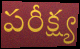
పరీక్ష్య